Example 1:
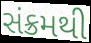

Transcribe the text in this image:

સંક્રમથી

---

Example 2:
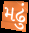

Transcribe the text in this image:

મઢું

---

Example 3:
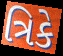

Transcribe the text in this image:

ત્રિકે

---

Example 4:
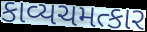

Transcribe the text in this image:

કાવ્યચમત્કાર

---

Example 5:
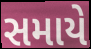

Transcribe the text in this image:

સમાયે